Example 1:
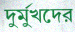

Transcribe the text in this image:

দুর্মুখদের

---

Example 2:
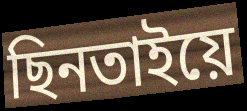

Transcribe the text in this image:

ছিনতাইয়ে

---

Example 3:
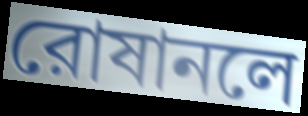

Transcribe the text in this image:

রোষানলে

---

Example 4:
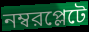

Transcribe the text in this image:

নম্বরপ্লেটে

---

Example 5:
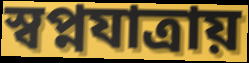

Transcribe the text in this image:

স্বপ্নযাত্রায়